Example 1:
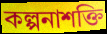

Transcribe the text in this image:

কল্পনাশক্তি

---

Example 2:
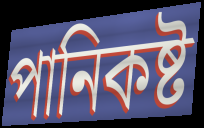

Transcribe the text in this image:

পানিকষ্ট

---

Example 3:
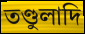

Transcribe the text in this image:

তণ্ডুলাদি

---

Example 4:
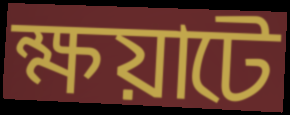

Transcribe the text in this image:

ক্ষয়াটে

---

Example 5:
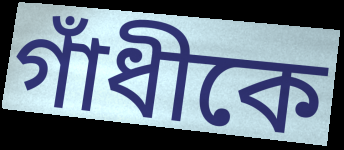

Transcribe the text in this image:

গাঁধীকে